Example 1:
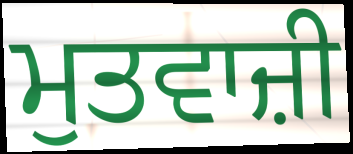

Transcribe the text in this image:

ਮੁਤਵਾਜ਼ੀ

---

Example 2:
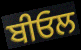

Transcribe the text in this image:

ਬੀਓਲ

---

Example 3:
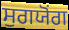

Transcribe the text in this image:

ਸੁਗਯੋਂਗ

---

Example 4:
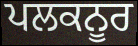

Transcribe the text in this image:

ਪਲਕਨੂਰ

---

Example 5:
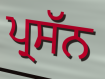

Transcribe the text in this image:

ਪ੍ਰਸੱਨ